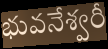
భువనేశ్వరీ